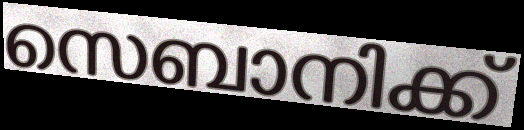
സെബാനിക്ക്